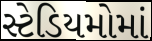
સ્ટેડિયમોમાં